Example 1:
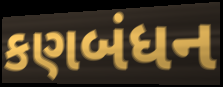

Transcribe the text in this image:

કણબંધન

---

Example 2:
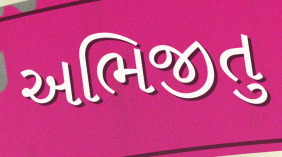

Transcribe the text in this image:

અભિજીતુ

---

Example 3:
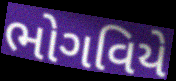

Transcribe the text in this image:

ભોગવિયે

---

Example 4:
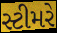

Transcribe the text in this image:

સ્ટીમરે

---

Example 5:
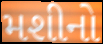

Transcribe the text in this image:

મશીનો